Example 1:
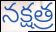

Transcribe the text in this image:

నక్షత్ర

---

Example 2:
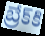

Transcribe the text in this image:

బ్రేక్‌కి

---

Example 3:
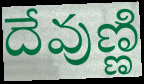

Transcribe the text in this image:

దేవుణ్ణి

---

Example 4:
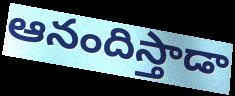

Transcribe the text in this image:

ఆనందిస్తాడా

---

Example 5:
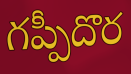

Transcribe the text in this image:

గప్పీదొర